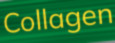
Collagen